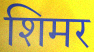
शिमर